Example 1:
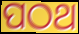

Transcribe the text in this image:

ପଠଥ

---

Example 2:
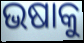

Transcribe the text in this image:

ଭଷାକୁ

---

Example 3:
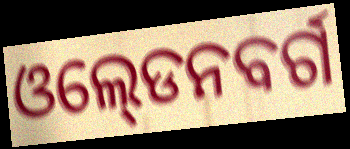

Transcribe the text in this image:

ଓଲ୍‍ଡେନବର୍ଗ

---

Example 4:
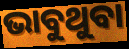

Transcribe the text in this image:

ଭାବୁଥୁବା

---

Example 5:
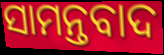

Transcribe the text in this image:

ସାମନ୍ତବାଦ